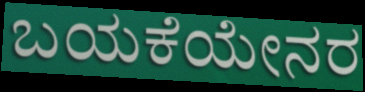
ಬಯಕೆಯೇನರ